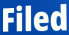
Filed